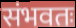
संभवतः